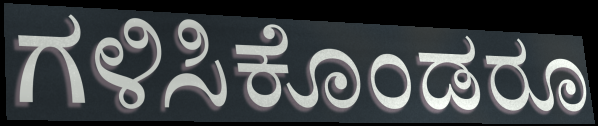
ಗಳಿಸಿಕೊಂಡರೂ